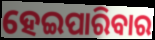
ହେଇପାରିବାର